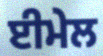
ਈਮੇਲ